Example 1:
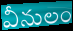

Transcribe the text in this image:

వీనులం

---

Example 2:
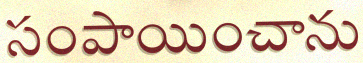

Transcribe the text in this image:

సంపాయించాను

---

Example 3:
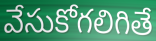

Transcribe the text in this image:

వేసుకోగలిగితే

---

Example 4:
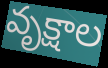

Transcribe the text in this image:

వృక్షాల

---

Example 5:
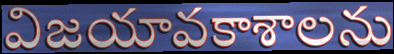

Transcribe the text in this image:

విజయావకాశాలను